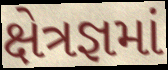
ક્ષેત્રજ્ઞમાં